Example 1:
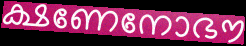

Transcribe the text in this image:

ക്ഷണേനോഭൗ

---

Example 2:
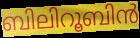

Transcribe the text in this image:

ബിലിറൂബിൻ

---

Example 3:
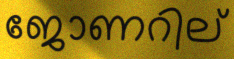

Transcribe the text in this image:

ജോണറില്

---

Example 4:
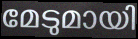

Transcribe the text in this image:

മേടുമായി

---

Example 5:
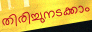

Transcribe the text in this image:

തിരിച്ചുനടക്കാം